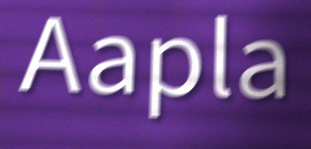
Aapla